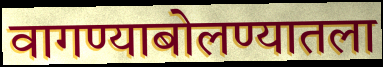
वागण्याबोलण्यातला